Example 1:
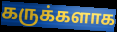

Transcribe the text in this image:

கருக்களாக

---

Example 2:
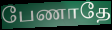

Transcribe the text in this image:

பேணாதே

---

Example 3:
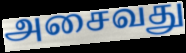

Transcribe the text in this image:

அசைவது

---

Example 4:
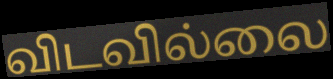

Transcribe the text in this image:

விடவில்லை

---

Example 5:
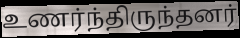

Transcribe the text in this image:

உணர்ந்திருந்தனர்